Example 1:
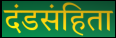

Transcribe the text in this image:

दंडसंहिता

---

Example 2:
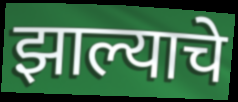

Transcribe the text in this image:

झाल्याचे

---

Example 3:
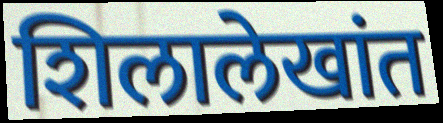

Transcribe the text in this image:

शिलालेखांत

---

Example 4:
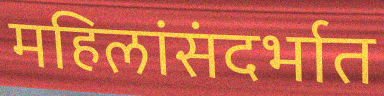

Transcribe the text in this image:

महिलांसंदर्भात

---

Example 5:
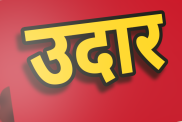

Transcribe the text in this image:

उदार